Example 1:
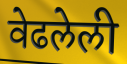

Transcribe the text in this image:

वेढलेली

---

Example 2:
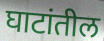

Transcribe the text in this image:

घाटांतील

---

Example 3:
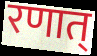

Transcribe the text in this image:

रणात्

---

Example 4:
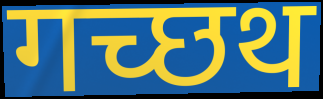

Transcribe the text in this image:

गच्छथ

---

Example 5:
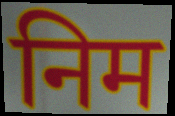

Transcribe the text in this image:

निम